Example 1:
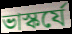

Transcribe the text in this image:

ভাস্কর্যে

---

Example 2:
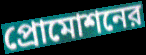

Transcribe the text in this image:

প্রোমোশনের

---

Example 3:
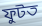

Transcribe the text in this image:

ফুটত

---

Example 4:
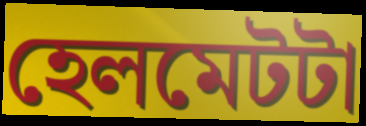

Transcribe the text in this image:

হেলমেটটা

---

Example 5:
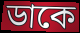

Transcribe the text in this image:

ডাকে